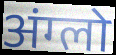
अंग्लो